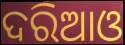
ଦରିଆଓ